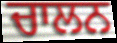
ਚਾਲਨ